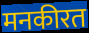
मनकीरत